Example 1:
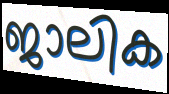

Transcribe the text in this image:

ജാലിക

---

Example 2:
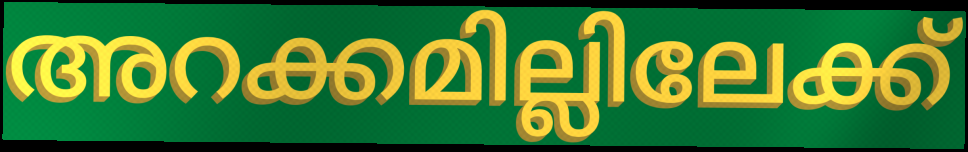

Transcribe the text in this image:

അറക്കമില്ലിലേക്ക്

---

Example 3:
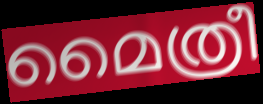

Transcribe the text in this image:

മൈത്രീ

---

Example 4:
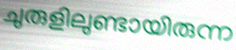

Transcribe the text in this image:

ചുരുളിലുണ്ടായിരുന്ന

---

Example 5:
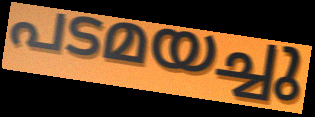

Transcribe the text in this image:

പടമയച്ചു